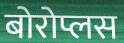
बोरोप्लस